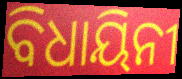
ବିଧାୟିନୀ